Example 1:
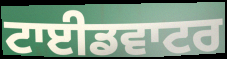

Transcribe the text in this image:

ਟਾਈਡਵਾਟਰ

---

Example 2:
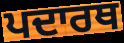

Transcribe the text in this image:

ਪਦਾਰਥ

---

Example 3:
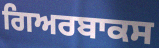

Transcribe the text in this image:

ਗਿਅਰਬਾਕਸ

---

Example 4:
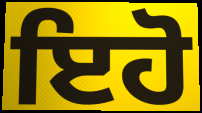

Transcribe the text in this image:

ਇਹੋ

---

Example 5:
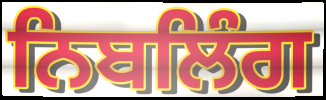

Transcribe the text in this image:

ਨਿਬਲਿੰਗ